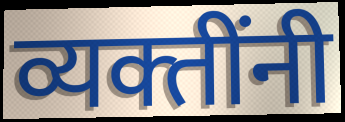
व्यक्‍तींनी